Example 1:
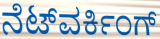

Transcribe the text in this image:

ನೆಟ್‌ವರ್ಕಿಂಗ್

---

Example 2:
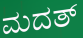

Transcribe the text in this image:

ಮದತ್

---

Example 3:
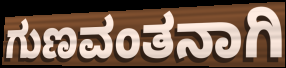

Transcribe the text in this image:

ಗುಣವಂತನಾಗಿ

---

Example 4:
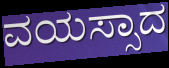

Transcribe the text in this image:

ವಯಸ್ಸಾದ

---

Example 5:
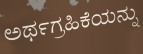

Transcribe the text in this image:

ಅರ್ಥಗ್ರಹಿಕೆಯನ್ನು